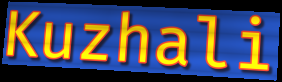
Kuzhali